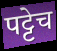
पट्टेच